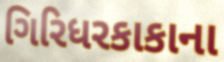
ગિરિધરકાકાના